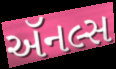
ઍનલ્સ